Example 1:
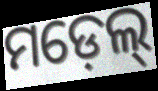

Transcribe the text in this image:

ମଡ଼େଲ୍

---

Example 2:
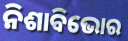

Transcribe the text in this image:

ନିଶାବିଭୋର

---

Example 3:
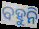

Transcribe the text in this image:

ବହୁନି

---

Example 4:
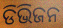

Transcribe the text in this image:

ଡିଭିଜନ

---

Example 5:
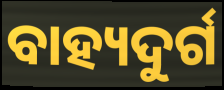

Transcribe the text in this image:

ବାହ୍ୟଦୁର୍ଗ